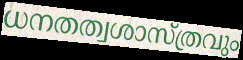
ധനതത്വശാസ്ത്രവും